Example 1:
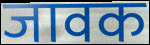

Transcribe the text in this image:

जावक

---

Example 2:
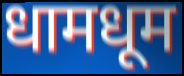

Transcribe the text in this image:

धामधूम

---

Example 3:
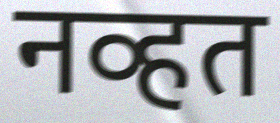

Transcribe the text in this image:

नव्हत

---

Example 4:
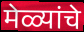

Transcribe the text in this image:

मेळ्यांचे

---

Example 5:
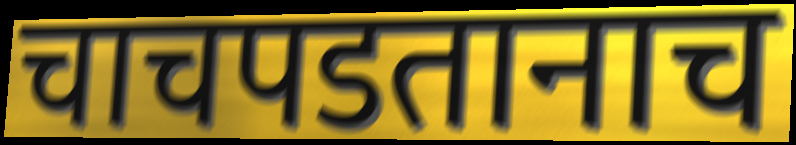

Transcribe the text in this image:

चाचपडतानाच